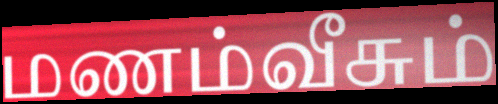
மணம்வீசும்